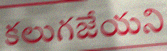
కలుగజేయని